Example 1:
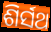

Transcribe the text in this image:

ଶିର୍ସଥ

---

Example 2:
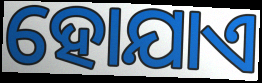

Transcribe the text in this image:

ହୋଯାଏ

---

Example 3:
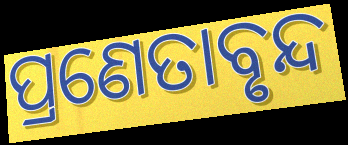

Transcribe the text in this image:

ପ୍ରଣେତାବୃନ୍ଦ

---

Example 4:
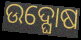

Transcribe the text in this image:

ଉଦ୍ଘୋଷ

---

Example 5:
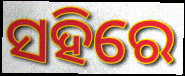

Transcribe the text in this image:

ସହିରେ